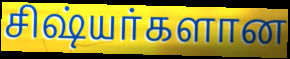
சிஷ்யர்களான